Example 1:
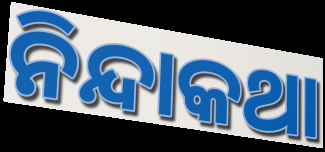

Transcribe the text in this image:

ନିନ୍ଦାକଥା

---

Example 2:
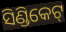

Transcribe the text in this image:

ସିଣ୍ଡିକେଟ୍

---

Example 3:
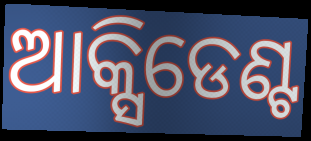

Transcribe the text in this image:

ଆକ୍ସିଡେଣ୍ଟ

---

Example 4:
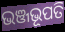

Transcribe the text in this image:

ଭଞ୍ଜଭୂପତି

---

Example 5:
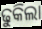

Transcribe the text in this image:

ଢୁକିଲା